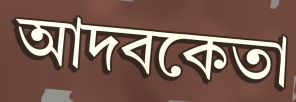
আদবকেতা